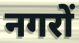
नगरों